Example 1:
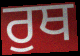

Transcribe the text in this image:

ਰੁਥ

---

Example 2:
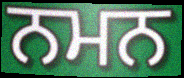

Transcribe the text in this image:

ਨਮਨ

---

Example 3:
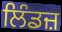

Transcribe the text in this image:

ਲਿੰਡਜ਼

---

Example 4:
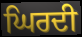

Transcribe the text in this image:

ਘਿਰਦੀ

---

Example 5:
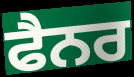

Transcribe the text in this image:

ਫੈਨਰ